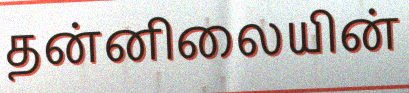
தன்னிலையின்